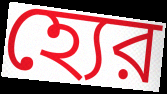
হ্যের